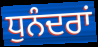
ਧੁਨੰਦਰਾਂ